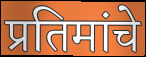
प्रतिमांचे